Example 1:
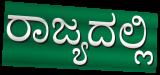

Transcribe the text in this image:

ರಾಜ್ಯದಲ್ಲಿ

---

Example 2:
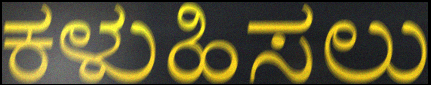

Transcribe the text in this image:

ಕಳುಹಿಸಲು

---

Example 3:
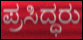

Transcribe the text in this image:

ಪ್ರಸಿದ್ಧರು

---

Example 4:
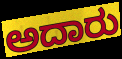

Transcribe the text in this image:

ಅದಾರು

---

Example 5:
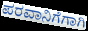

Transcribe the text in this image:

ಪರವಾನಿಗೆಗಾಗಿ